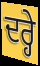
ਦਰ੍ਹੇ